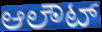
ಆಲೌಟ್